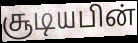
சூடியபின்